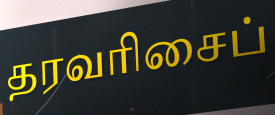
தரவரிசைப்